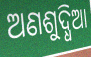
ଅଣଶୁଦ୍ଧିଆ